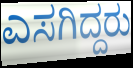
ಎಸಗಿದ್ದರು